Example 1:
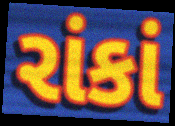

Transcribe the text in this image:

રાંકાં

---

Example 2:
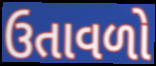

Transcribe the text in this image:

ઉતાવળો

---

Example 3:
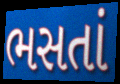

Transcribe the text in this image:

ભસતાં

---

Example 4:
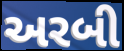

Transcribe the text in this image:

અરબી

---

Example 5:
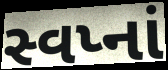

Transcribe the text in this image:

સ્વપ્નાં